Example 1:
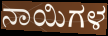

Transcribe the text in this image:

ನಾಯಿಗಳ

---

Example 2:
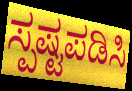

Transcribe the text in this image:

ಸ್ಪಷ್ಟಪಡಿಸಿ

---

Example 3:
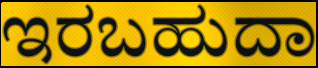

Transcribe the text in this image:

ಇರಬಹುದಾ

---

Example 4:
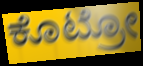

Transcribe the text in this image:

ಕೊಟ್ರೋ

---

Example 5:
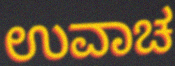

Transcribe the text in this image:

ಉವಾಚ